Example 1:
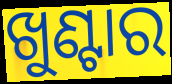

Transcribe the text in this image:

ଖୁଣ୍ଟାର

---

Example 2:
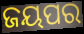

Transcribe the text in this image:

ଜୟପର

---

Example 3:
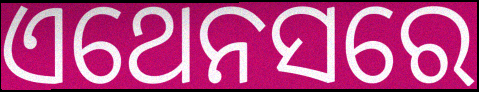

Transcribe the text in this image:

ଏଥେନସରେ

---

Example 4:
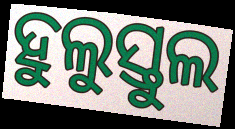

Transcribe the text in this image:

ହୁଲୁସ୍ତୁଲ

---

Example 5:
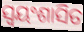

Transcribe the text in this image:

ସ୍ବୟଂଶାସିତ